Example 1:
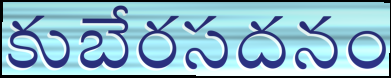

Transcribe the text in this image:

కుబేరసదనం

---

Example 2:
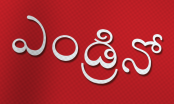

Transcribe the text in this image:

ఎండ్రినో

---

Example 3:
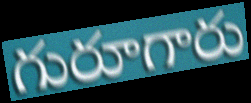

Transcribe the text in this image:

గురూగారు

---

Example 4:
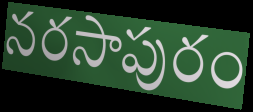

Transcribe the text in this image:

నరసాపురం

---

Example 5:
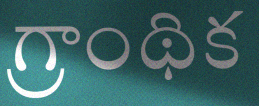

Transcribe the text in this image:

గ్రాంథిక